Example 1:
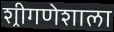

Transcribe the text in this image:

श्रीगणेशाला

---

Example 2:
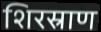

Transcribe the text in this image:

शिरस्राण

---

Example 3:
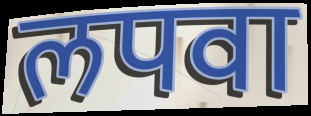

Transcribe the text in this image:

लपवा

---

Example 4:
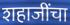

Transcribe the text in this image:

शहाजींचा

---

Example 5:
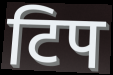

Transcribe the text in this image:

टिप